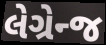
લેગ્રેન્જ